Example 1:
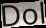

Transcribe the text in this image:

Dol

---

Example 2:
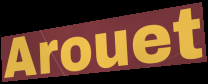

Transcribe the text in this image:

Arouet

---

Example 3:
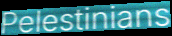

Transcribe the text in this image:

Pelestinians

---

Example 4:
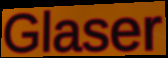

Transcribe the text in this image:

Glaser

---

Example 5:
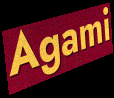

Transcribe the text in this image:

Agami